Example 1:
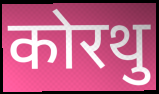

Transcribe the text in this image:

कोरथु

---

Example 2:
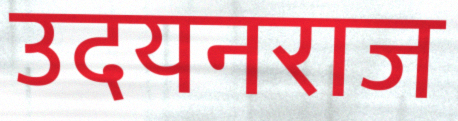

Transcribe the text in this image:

उदयनराज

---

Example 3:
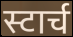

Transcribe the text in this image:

स्टार्च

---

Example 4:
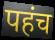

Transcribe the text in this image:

पहंच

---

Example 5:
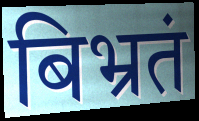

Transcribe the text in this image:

बिभ्रतं